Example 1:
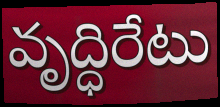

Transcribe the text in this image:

వృద్ధిరేటు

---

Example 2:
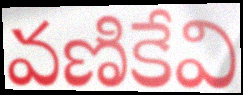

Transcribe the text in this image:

వణికేవి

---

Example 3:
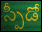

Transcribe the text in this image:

స్పీడో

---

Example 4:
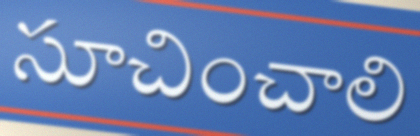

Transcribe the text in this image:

సూచించాలి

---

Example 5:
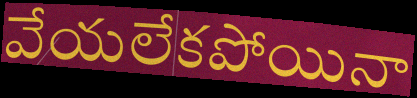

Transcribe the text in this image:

వేయలేకపోయినా